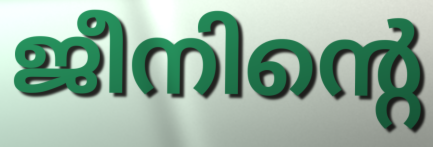
ജീനിന്റെ